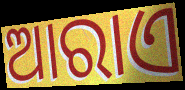
ଆରାଏ